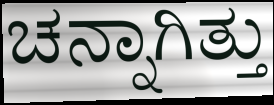
ಚನ್ನಾಗಿತ್ತು